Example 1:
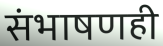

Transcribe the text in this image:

संभाषणही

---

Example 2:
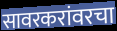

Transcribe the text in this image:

सावरकरांवरचा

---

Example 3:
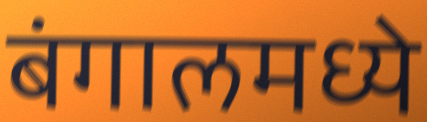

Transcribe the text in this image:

बंगालमध्ये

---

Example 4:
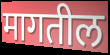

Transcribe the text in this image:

मागतील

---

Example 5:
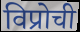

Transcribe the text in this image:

विप्रोची